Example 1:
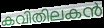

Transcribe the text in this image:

കവിതിലകൻ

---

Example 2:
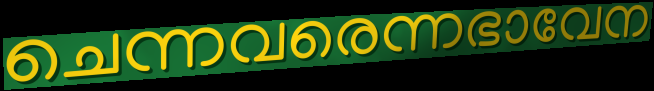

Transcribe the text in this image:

ചെന്നവരെന്നഭാവേന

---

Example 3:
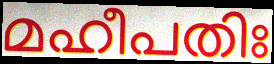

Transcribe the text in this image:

മഹീപതിഃ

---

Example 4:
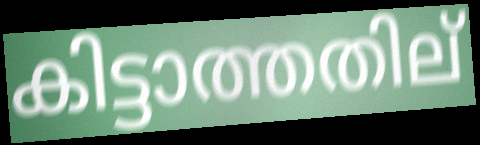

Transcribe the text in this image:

കിട്ടാത്തതില്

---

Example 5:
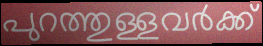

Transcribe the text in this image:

പുറത്തുള്ളവർക്ക്